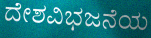
ದೇಶವಿಭಜನೆಯ